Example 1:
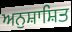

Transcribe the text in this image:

ਅਨੁਸ਼ਾਸ਼ਿਤ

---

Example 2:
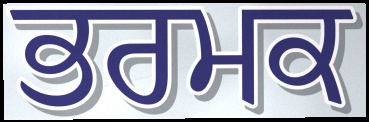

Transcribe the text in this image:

ਭਰਮਕ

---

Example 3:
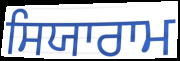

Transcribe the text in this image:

ਸਿਯਾਰਾਮ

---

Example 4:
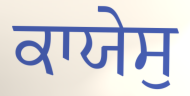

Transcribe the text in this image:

ਕਾਯੇਸੁ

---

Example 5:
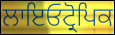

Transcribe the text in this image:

ਲਾਇਓਟ੍ਰੋਪਿਕ